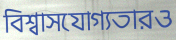
বিশ্বাসযোগ্যতারও